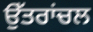
ਉੱਤਰਾਂਚਲ